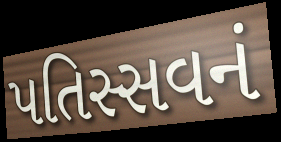
પતિસ્સવનં